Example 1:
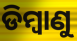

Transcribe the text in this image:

ଡିମ୍ବାଣୁ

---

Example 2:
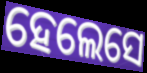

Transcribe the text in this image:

ହେଲେସେ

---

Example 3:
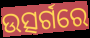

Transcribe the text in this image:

ଉତ୍ସର୍ଗରେ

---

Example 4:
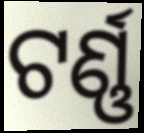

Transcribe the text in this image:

ଟର୍ଣ୍ଣ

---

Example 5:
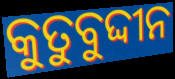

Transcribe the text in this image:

କୁତୁବୁଦ୍ଦୀନ